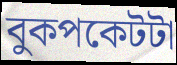
বুকপকেটটা